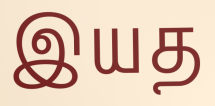
இயத